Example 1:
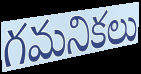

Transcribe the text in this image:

గమనికలు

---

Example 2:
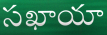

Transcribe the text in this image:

సఖాయా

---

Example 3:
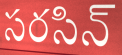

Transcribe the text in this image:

సరసిన్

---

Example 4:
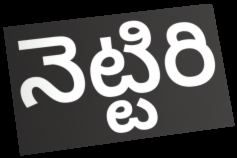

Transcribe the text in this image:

నెట్టిరి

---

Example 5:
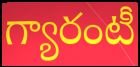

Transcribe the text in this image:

గ్యారంటీ